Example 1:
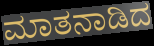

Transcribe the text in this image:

ಮಾತನಾಡಿದ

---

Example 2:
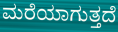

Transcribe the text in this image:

ಮರೆಯಾಗುತ್ತದೆ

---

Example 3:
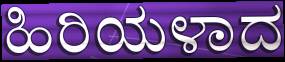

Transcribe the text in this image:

ಹಿರಿಯಳಾದ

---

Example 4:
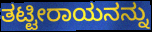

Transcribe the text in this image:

ತಟ್ಟೀರಾಯನನ್ನು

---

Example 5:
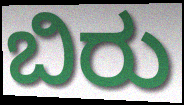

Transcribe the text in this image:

ಬಿರು